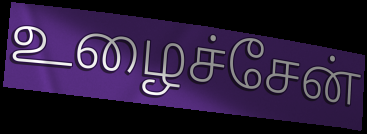
உழைச்சேன்